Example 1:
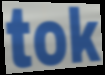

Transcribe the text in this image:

tok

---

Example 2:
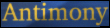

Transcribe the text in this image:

Antimony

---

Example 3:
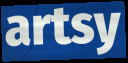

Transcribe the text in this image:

artsy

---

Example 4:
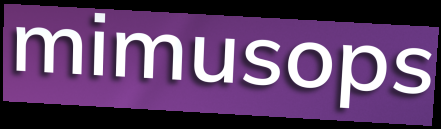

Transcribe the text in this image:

mimusops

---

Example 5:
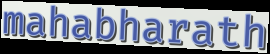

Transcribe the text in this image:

mahabharath